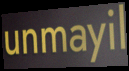
unmayil